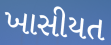
ખાસીયત